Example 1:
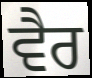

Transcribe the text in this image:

ਵੈਰ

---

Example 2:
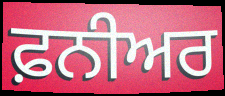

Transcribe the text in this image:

ਫ਼ਨੀਅਰ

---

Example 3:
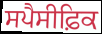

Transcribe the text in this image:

ਸਪੈਸੀਫ਼ਿਕ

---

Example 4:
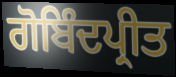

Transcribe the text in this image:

ਗੋਬਿੰਦਪ੍ਰੀਤ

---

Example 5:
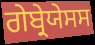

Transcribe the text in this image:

ਗੇਬ੍ਰੇਯੇਸਸ